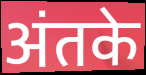
अंतके